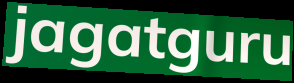
jagatguru